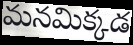
మనమిక్కడ